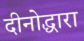
दीनोद्धारा